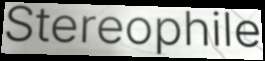
Stereophile